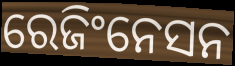
ରେଜିଂନେସନ